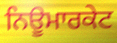
ਨਿਊਮਾਰਕੇਟ